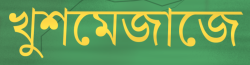
খুশমেজাজে